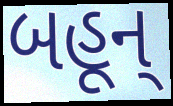
બહૂન્